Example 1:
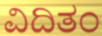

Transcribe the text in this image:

ವಿದಿತಂ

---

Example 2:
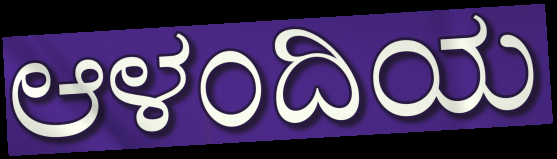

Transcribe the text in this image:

ಆಳಂದಿಯ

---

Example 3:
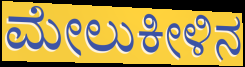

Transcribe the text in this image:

ಮೇಲುಕೀಳಿನ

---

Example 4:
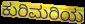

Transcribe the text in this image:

ಕುರಿಮರಿಯ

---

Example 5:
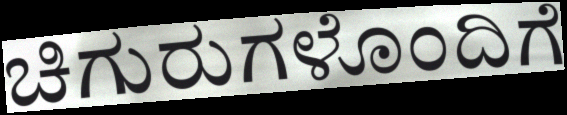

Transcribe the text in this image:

ಚಿಗುರುಗಳೊಂದಿಗೆ